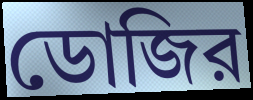
ডোজির